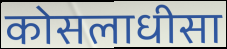
कोसलाधीसा